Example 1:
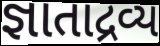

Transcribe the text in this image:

જ્ઞાતાદ્રવ્ય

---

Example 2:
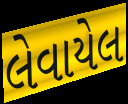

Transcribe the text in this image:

લેવાયેલ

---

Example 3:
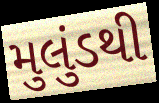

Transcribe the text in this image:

મુલુંડથી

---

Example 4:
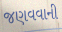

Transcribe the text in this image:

જણવવાની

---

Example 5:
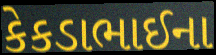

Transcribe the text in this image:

કેકડાભાઈના